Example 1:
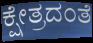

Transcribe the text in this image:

ಕ್ಷೇತ್ರದಂತೆ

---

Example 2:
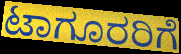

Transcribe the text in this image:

ಟಾಗೂರರಿಗೆ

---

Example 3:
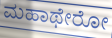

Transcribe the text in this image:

ಮಹಾಥೇರೋ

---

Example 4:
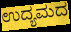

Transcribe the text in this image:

ಉದ್ಯಮದ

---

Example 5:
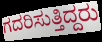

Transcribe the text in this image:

ಗದರಿಸುತ್ತಿದ್ದರು